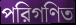
পরিগণিত